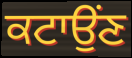
ਕਟਾਉਂਣ